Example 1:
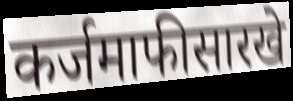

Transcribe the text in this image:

कर्जमाफीसारखे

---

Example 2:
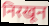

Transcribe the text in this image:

निरखून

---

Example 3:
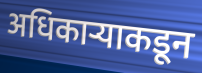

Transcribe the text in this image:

अधिकाऱ्याकडून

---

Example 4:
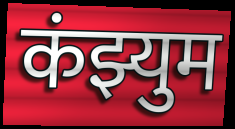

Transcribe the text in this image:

कंझ्युम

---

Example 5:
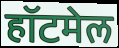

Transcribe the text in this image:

हॉटमेल